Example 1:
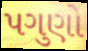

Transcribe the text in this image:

પગુણો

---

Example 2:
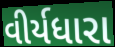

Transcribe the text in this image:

વીર્યધારા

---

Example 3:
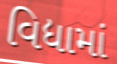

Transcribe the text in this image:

વિદ્યામાં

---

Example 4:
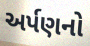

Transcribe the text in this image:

અર્પણનો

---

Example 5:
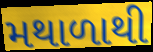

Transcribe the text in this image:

મથાળાથી